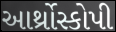
આર્થ્રોસ્કોપી